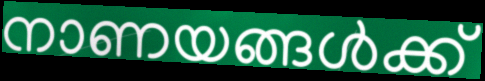
നാണയങ്ങൾക്ക്